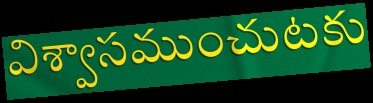
విశ్వాసముంచుటకు